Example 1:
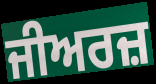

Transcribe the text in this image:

ਜੀਅਰਜ਼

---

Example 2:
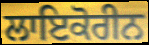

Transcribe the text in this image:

ਲਾਇਕੋਰੀਨ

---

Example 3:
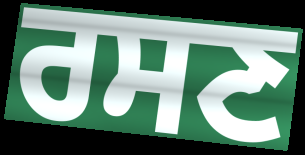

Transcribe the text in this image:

ਰਸਣ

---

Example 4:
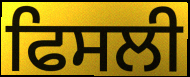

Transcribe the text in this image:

ਫਿਸਲੀ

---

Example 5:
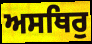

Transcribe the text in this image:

ਅਸਥਿਰੁ